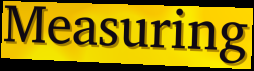
Measuring